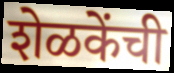
शेळकेंची